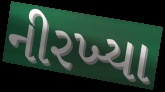
નીરખ્યા